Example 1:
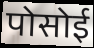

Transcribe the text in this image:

पोसोई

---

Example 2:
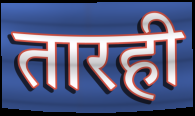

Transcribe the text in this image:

तारही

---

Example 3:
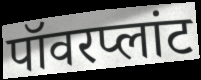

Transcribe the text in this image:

पॉवरप्लांट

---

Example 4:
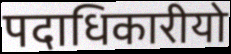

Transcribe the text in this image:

पदाधिकारीयो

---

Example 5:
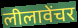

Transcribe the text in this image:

लीलावेंचर